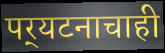
पर्यटनाचाही